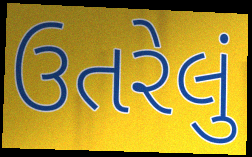
ઉતરેલું